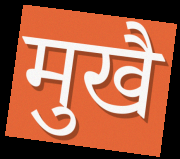
मुखै